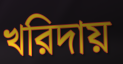
খরিদায়